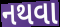
નથવા